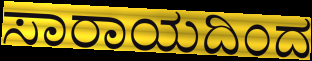
ಸಾರಾಯದಿಂದ